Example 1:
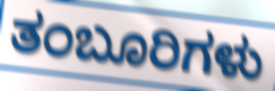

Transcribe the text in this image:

ತಂಬೂರಿಗಳು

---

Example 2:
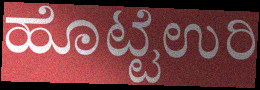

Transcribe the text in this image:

ಹೊಟ್ಟೆಉರಿ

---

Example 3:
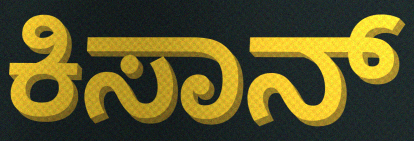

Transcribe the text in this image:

ಕಿಸಾನ್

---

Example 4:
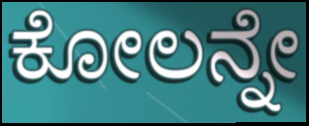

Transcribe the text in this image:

ಕೋಲನ್ನೇ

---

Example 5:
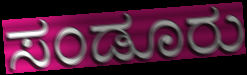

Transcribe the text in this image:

ಸಂಡೂರು